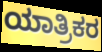
ಯಾತ್ರಿಕರ